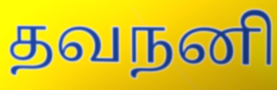
தவநனி